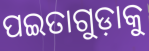
ପଇତାଗୁଡ଼ାକୁ